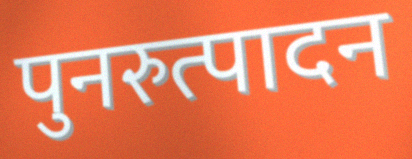
पुनरुत्पादन